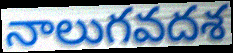
నాలుగవదశ